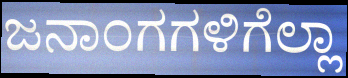
ಜನಾಂಗಗಳಿಗೆಲ್ಲಾ